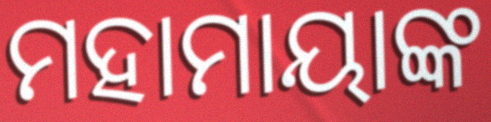
ମହାମାୟାଙ୍କ